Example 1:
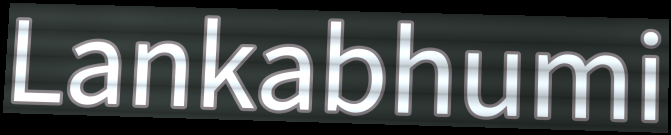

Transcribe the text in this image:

Lankabhumi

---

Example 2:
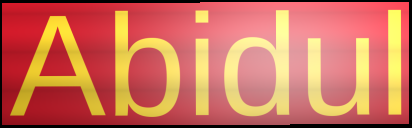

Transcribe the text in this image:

Abidul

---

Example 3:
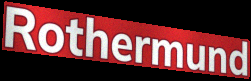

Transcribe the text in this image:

Rothermund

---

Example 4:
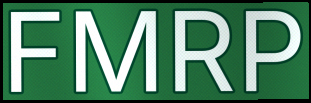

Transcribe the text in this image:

FMRP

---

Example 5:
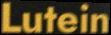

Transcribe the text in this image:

Lutein